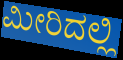
ಮೀರಿದಲ್ಲಿ